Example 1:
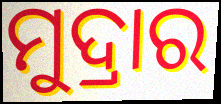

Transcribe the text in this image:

ମୁଦ୍ରାର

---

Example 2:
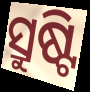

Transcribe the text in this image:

ସ୍ରୁଷ୍ଟି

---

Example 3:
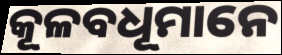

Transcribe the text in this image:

କୂଳବଧୂମାନେ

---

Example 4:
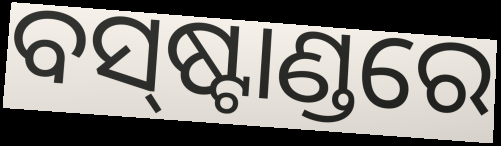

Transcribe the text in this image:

ବସ୍‍ଷ୍ଟାଣ୍ଡରେ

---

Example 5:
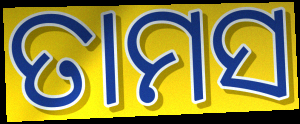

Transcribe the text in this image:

ତାମସ